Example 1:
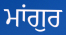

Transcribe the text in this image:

ਮਾਂਗੁਰ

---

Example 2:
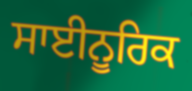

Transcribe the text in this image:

ਸਾਈਨੂਰਿਕ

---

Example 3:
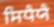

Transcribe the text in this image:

ਸਿਧੈਯੈ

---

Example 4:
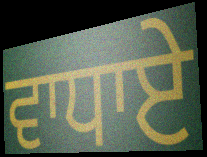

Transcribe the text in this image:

ਵਾਧਾਏ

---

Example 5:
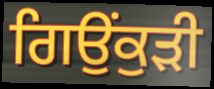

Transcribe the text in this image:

ਗਿਉਂਕੁੜੀ